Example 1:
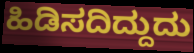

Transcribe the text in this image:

ಹಿಡಿಸದಿದ್ದುದು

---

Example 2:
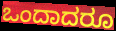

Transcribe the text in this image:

ಒಂದಾದರೂ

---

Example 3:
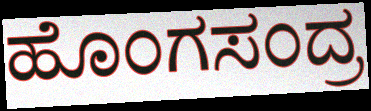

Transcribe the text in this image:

ಹೊಂಗಸಂದ್ರ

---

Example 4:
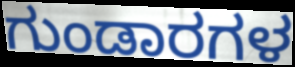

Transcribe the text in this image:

ಗುಂಡಾರಗಳ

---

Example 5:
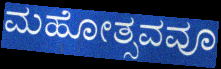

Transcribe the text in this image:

ಮಹೋತ್ಸವವೂ